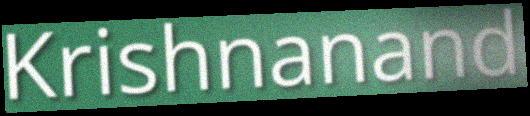
Krishnanand